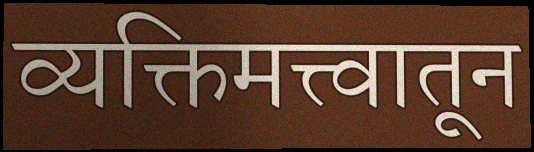
व्यक्तिमत्त्वातून